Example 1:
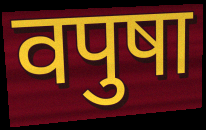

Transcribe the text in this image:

वपुषा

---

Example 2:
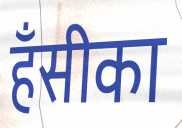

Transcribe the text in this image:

हँसीका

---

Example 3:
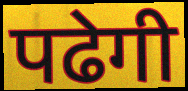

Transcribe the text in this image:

पढेगी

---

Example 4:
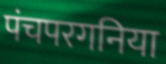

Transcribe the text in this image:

पंचपरगनिया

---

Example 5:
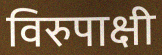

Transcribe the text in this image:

विरुपाक्षी